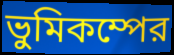
ভুমিকম্পের